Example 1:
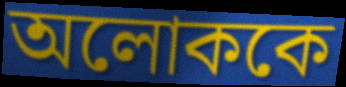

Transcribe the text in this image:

অলোককে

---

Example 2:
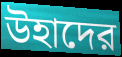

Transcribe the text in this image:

উহাদের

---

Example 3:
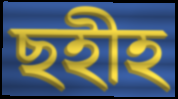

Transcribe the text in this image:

ছহীহ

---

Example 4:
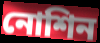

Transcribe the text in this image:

নোশিন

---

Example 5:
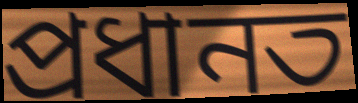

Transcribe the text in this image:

প্রধানত